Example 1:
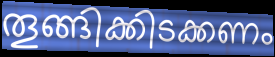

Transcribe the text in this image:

തൂങ്ങിക്കിടക്കണം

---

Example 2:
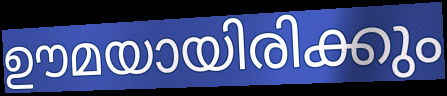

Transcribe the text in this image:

ഊമയായിരിക്കും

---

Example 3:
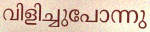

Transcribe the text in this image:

വിളിച്ചുപോന്നു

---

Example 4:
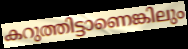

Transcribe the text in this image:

കറുത്തിട്ടാണെങ്കിലും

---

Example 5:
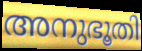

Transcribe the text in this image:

അനുഭൂതി